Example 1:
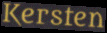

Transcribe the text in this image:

Kersten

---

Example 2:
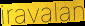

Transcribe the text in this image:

iravalan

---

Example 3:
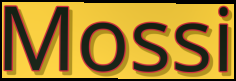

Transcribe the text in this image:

Mossi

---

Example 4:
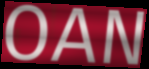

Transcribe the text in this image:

OAN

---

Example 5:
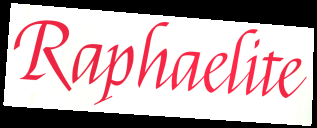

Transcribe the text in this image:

Raphaelite